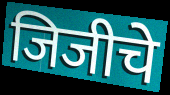
जिजीचे